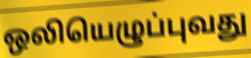
ஒலியெழுப்புவது